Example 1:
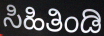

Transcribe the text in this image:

ಸಿಹಿತಿಂಡಿ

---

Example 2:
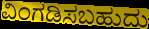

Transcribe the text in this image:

ವಿಂಗಡಿಸಬಹುದು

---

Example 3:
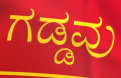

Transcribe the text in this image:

ಗಡ್ಡವು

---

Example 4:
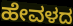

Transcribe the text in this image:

ಹೇವಳದ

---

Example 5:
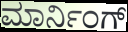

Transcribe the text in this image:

ಮಾರ್ನಿಂಗ್